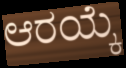
ಆರಯ್ಕೆ